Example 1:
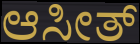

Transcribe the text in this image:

ಆಸೀತ್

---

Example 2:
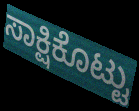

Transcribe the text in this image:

ಸಾಕ್ಷಿಕೊಟ್ಟು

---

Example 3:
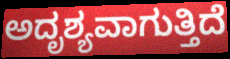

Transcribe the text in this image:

ಅದೃಶ್ಯವಾಗುತ್ತಿದೆ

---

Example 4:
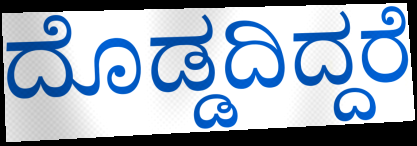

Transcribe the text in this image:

ದೊಡ್ಡದಿದ್ದರೆ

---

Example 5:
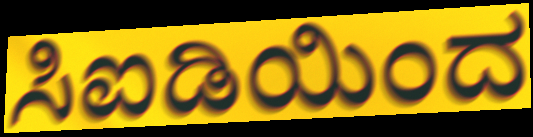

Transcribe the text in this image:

ಸಿಐಡಿಯಿಂದ